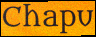
Chapu